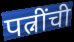
पत्नींची